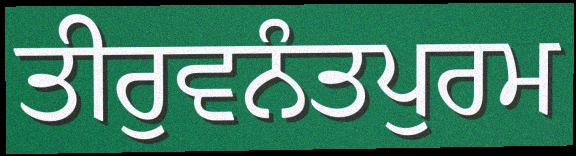
ਤੀਰੁਵਨੰਤਪੁਰਮ